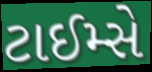
ટાઈમ્સે